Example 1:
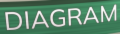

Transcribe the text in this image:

DIAGRAM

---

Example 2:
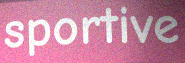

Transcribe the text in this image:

sportive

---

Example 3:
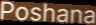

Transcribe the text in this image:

Poshana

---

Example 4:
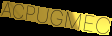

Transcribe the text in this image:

ACPUGMEC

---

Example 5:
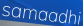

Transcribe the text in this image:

samaadhi